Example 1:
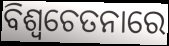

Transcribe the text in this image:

ବିଶ୍ୱଚେତନାରେ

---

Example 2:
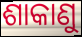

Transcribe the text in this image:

ଶାକାଣୁ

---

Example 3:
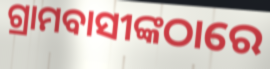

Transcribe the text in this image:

ଗ୍ରାମବାସୀଙ୍କଠାରେ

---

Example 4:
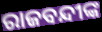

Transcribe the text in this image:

ରାଜବନ୍ଦୀଙ୍କ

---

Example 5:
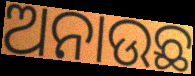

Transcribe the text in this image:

ଅନାଉଛ